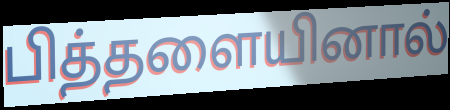
பித்தளையினால்